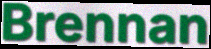
Brennan